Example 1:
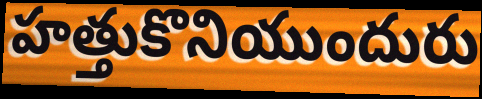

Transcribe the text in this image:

హత్తుకొనియుందురు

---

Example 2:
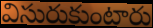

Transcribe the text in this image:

విసురుకుంటారు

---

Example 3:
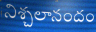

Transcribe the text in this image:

నిశ్చలానందం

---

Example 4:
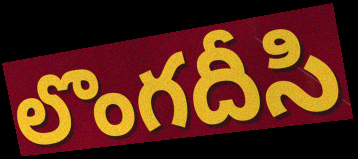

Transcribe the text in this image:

లొంగదీసి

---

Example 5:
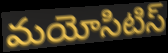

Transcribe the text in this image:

మయోసిటిస్